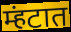
म्हंटात